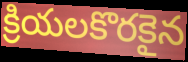
క్రియలకొరకైన